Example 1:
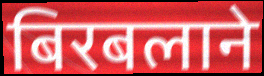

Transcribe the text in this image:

बिरबलाने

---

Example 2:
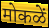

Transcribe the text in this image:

मोकळें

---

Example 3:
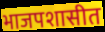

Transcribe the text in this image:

भाजपशासीत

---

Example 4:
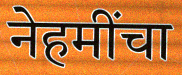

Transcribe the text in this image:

नेहमींचा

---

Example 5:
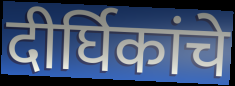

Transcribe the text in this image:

दीर्घिकांचे